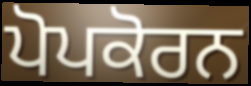
ਪੋਪਕੋਰਨ